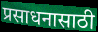
प्रसाधनासाठी